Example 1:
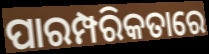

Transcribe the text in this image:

ପାରମ୍ପରିକତାରେ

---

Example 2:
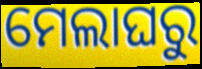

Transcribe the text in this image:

ମେଲାଘରୁ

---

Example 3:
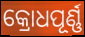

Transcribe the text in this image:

କ୍ରୋଧପୂର୍ଣ୍ଣ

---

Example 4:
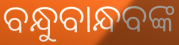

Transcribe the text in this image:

ବନ୍ଧୁବାନ୍ଧବଙ୍କ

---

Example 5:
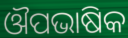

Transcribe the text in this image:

ଔପଭାଷିକ